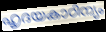
ഹൃദയകാഠിന്യം